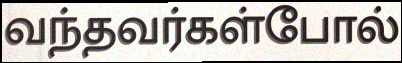
வந்தவர்கள்போல்